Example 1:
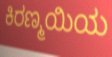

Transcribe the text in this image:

ಕಿರಣ್ಮಯಿಯ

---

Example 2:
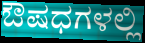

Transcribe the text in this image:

ಔಷಧಗಳಲ್ಲಿ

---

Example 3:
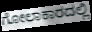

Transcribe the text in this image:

ಗೋಲಾಕಾರದಲ್ಲಿ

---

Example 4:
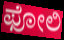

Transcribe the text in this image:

ಫೋಲಿ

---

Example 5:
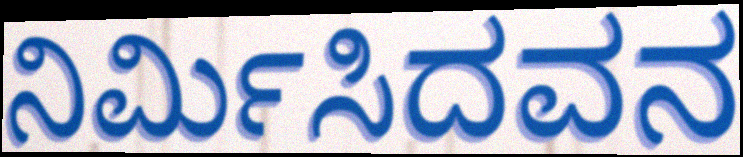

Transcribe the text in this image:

ನಿರ್ಮಿಸಿದವನ